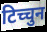
टिच्चुन